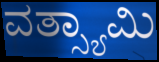
ವತ್ಸ್ಯಾಮಿ